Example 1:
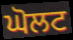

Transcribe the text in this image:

ਘੋਲਟ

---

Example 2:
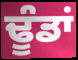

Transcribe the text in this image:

ਢੂੰਡਾਂ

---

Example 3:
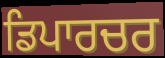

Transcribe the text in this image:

ਡਿਪਾਰਚਰ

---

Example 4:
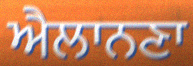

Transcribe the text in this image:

ਐਲਾਨਣਾ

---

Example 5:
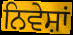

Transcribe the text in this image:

ਨਿਵੇਸ਼ਾਂ